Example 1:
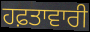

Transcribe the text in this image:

ਹਫ਼ਤਾਵਾਰੀ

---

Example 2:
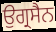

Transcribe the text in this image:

ਉਗ੍ਰਸੈਨ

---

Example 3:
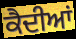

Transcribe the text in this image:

ਕੈਦੀਆਂ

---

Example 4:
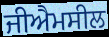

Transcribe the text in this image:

ਜੀਐਮਸੀਲ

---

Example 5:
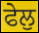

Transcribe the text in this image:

ਫੇਲੁ